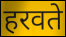
हरवते